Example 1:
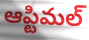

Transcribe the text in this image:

ఆప్టిమల్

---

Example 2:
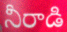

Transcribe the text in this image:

నీరాడి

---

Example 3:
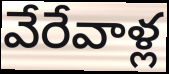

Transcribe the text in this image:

వేరేవాళ్ల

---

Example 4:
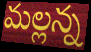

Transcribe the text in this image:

మల్లన్న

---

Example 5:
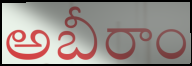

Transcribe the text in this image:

అబీరాం